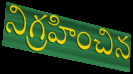
నిగ్రహించిన